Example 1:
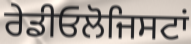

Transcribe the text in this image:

ਰੇਡੀਓਲੋਜਿਸਟਾਂ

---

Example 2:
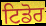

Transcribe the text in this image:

ਟਿਡੋਰ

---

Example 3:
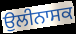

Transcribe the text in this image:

ਉਲੀਨਾਸਕ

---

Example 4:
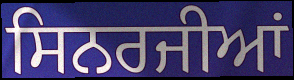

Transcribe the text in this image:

ਸਿਨਰਜੀਆਂ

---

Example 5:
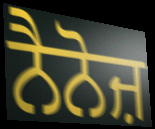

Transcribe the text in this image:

ਨੈਨੋਜ਼